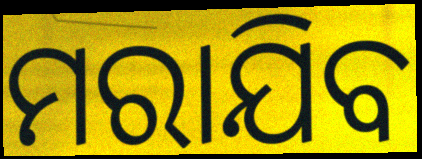
ମରାଯିବ